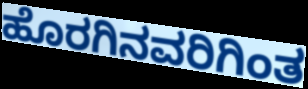
ಹೊರಗಿನವರಿಗಿಂತ